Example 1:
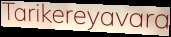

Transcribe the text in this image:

Tarikereyavara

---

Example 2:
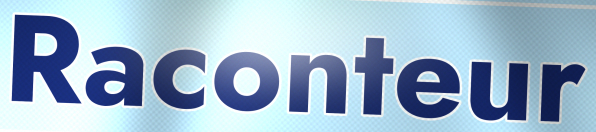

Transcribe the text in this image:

Raconteur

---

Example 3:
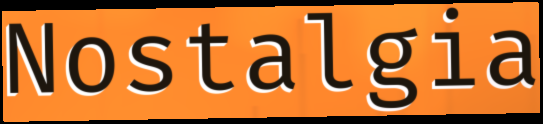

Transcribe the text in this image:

Nostalgia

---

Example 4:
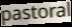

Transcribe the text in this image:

pastoral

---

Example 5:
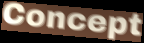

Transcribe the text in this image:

Concept